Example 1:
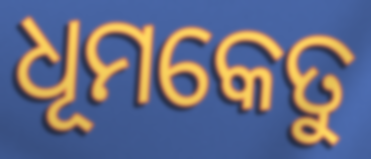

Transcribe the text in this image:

ଧୂମକେତୁ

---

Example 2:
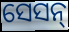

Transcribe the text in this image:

ସେସନ୍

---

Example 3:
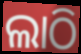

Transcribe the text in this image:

ଲାଠି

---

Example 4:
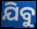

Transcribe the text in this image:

ଯିବୁ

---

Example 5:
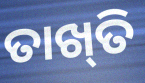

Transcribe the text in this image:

ତାଖ୍‍ତି